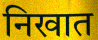
निखात